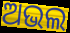
ଅଭଲ